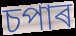
চপাৰ